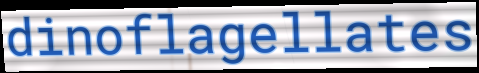
dinoflagellates